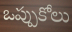
ఒప్పుకోలు